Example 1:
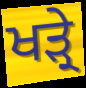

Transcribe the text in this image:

ਖੜ੍ਰੇ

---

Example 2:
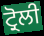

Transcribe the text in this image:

ਟ੍ਰੋਲੀ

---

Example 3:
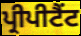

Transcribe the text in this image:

ਪ੍ਰੀਪੀਟੈਂਟ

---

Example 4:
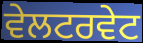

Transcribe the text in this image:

ਵੇਲਟਰਵੇਟ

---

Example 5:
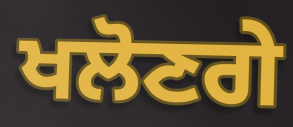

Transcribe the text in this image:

ਖਲੋਣਗੇ